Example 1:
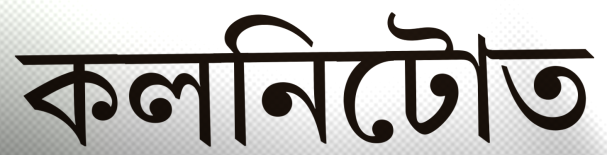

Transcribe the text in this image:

কলনিটোত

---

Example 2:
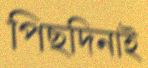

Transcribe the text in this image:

পিছদিনাই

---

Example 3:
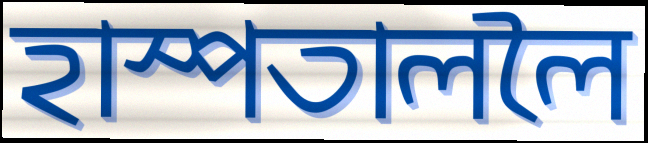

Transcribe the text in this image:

হাস্পতাললৈ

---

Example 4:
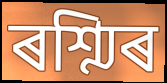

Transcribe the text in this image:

ৰশ্মিৰ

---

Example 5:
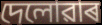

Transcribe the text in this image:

দেলোৱাৰ